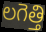
లగెత్తి